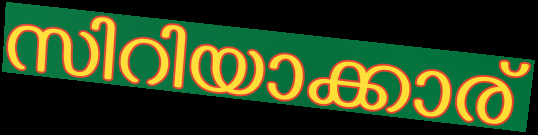
സിറിയാക്കാര്